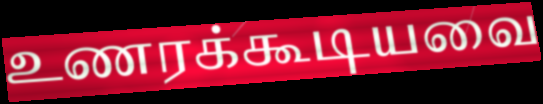
உணரக்கூடியவை